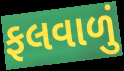
ફલવાળું